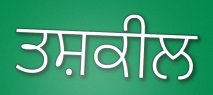
ਤਸ਼ਕੀਲ